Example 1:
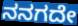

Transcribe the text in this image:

ನನಗದೇ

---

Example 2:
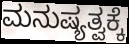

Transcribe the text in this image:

ಮನುಷ್ಯತ್ವಕ್ಕೆ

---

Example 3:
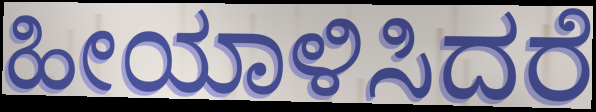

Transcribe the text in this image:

ಹೀಯಾಳಿಸಿದರೆ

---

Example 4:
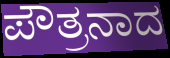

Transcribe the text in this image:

ಪೌತ್ರನಾದ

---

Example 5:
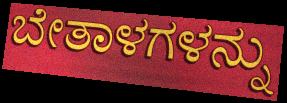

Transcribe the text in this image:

ಬೇತಾಳಗಳನ್ನು